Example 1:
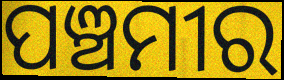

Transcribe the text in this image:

ପଞ୍ଚମୀର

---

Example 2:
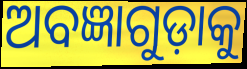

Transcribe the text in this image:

ଅବଜ୍ଞାଗୁଡ଼ାକୁ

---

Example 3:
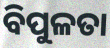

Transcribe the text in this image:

ବିପୁଳତା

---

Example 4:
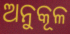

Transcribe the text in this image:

ଅନୁକୂଳ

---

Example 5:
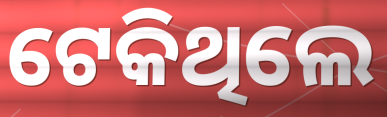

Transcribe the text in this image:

ଟେକିଥିଲେ